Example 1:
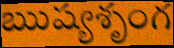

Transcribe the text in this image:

ఋష్యశృంగ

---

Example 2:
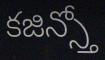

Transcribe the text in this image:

కజిన్స్తో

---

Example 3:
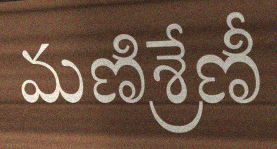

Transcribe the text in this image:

మణిశ్రేణీ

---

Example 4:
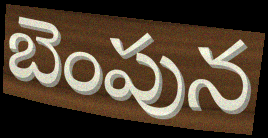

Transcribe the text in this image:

బెంపున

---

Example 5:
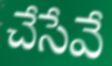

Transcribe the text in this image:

చేసేవే